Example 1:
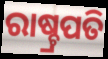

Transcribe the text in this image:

ରାଷ୍ଚ୍ରପତି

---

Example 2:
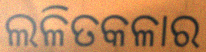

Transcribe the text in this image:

ଲଳିତକଳାର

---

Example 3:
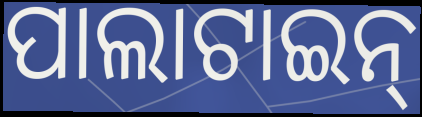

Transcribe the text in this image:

ପାଲାଟାଇନ୍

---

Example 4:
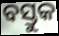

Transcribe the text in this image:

ବସ୍ତୁକ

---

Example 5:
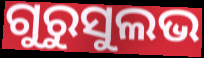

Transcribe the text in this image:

ଗୁରୁସୁଲଭ